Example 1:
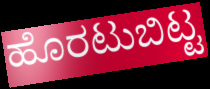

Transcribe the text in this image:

ಹೊರಟುಬಿಟ್ಟ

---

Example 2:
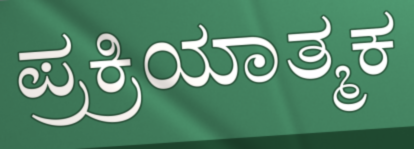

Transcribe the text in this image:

ಪ್ರಕ್ರಿಯಾತ್ಮಕ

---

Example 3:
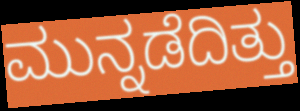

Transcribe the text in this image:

ಮುನ್ನಡೆದಿತ್ತು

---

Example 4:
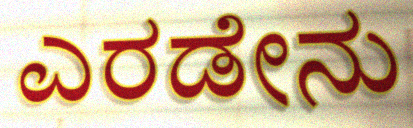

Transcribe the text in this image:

ಎರಡೇನು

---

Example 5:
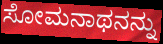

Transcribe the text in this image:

ಸೋಮನಾಥನನ್ನು